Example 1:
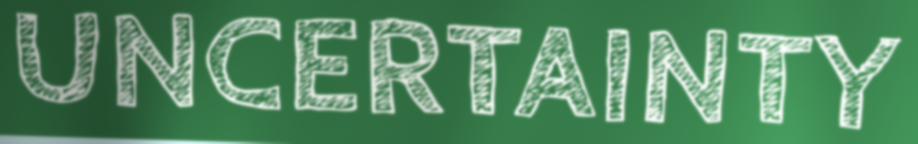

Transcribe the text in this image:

UNCERTAINTY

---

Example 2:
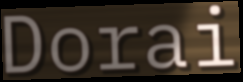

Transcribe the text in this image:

Dorai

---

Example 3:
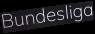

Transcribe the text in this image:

Bundesliga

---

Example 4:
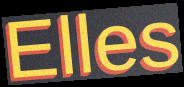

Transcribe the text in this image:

Elles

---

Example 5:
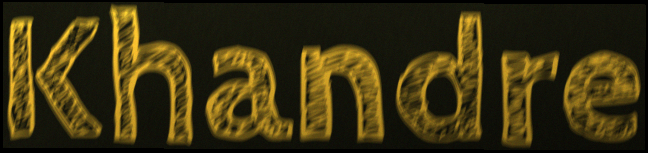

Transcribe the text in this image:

Khandre